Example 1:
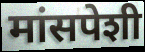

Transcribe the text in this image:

मांसपेशी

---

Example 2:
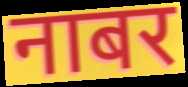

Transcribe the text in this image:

नाबर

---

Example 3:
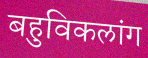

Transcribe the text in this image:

बहुविकलांग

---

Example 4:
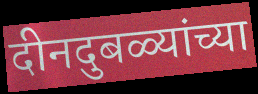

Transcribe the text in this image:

दीनदुबळ्यांच्या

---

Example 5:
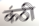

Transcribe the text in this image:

कंठी